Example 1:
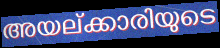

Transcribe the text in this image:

അയല്ക്കാരിയുടെ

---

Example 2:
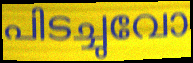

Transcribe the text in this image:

പിടച്ചുവോ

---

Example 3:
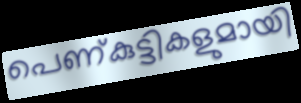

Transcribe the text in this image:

പെണ്കുട്ടികളുമായി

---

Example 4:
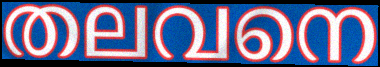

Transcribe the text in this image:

തലവനെ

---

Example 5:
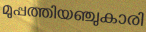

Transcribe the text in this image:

മുപ്പത്തിയഞ്ചുകാരി